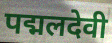
पद्मलदेवी